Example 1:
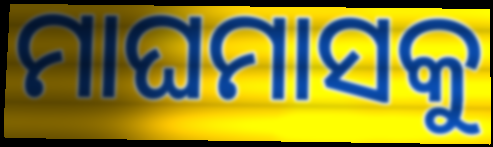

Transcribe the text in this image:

ମାଘମାସକୁ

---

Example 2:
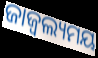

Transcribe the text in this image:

ଜାଜ୍ୱଲ୍ୟମୟ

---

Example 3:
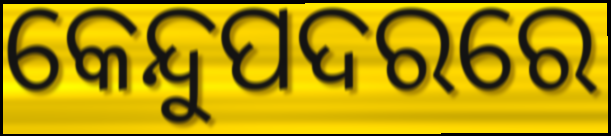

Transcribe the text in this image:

କେନ୍ଦୁପଦରରେ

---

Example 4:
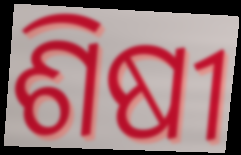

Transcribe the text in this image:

ଶିଷୀ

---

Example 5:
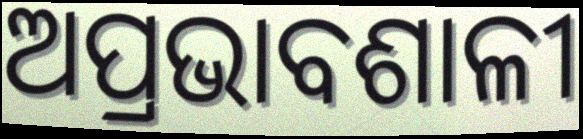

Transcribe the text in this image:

ଅପ୍ରଭାବଶାଳୀ